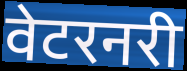
वेटरनरी